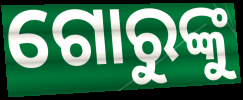
ଗୋରୁଙ୍କୁ